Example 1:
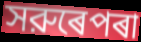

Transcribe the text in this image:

সৰুৰেপৰা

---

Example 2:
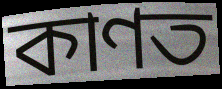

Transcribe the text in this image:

কাণত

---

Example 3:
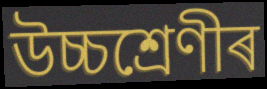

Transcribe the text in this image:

উচ্চশ্ৰেণীৰ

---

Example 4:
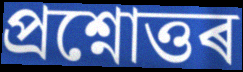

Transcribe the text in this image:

প্ৰশ্নোত্তৰ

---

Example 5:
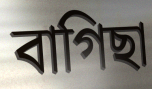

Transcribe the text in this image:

বাগিছা